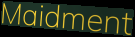
Maidment